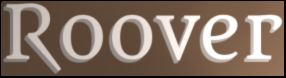
Roover